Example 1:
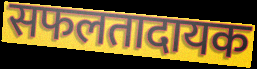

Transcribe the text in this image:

सफलतादायक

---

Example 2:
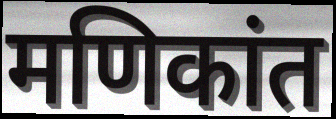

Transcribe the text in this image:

मणिकांत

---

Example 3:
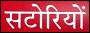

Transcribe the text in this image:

सटोरियों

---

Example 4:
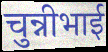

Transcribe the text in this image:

चुन्नीभाई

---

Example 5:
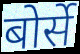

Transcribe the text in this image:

बोर्से